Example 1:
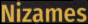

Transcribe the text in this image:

Nizames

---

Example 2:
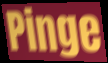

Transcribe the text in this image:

Pinge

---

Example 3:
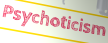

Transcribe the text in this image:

Psychoticism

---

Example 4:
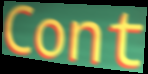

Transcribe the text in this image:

Cont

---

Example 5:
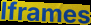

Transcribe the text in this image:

Iframes